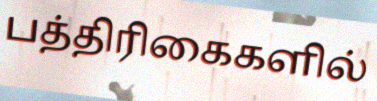
பத்திரிகைகளில்